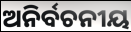
ଅନିର୍ବଚନୀୟ